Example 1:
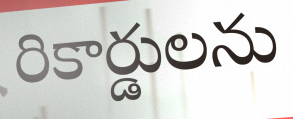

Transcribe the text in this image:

రికార్డులను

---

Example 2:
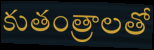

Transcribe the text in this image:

కుతంత్రాలతో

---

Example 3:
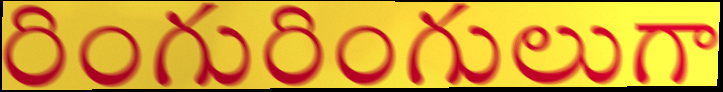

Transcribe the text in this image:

రింగురింగులుగా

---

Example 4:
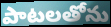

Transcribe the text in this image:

పాటలతోను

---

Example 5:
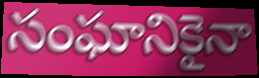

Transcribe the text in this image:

సంఘానికైనా